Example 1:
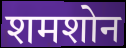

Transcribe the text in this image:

शमशोन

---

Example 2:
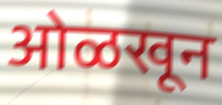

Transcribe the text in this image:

ओळखून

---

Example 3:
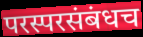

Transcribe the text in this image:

परस्परसंबंधच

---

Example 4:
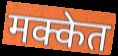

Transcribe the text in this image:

मक्केत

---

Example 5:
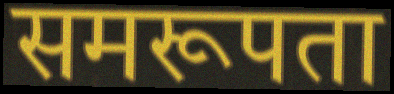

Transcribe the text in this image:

समरूपता